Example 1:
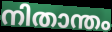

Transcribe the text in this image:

നിതാന്തം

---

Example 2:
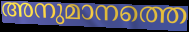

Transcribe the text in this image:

അനുമാനത്തെ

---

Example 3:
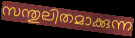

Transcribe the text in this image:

സന്തുലിതമാക്കുന്ന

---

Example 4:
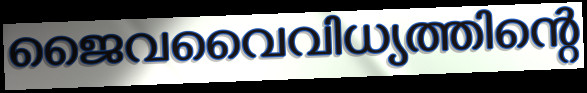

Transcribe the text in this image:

ജൈവവൈവിധ്യത്തിന്റെ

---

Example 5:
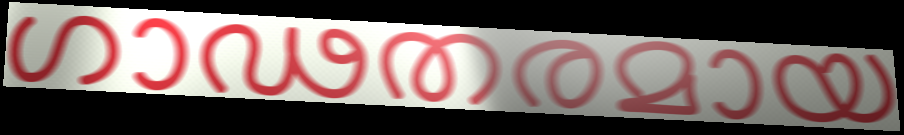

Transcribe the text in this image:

ഗാഢതരമായ